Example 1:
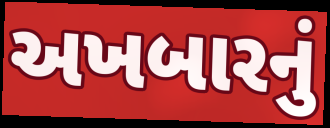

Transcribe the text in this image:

અખબારનું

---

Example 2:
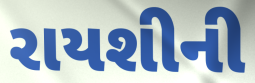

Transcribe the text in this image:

રાયશીની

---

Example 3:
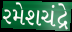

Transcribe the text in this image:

રમેશચંદ્રે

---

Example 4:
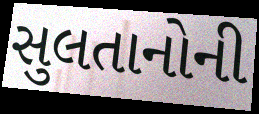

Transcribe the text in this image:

સુલતાનોની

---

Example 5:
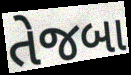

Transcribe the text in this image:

તેજબા